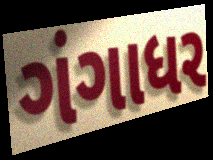
ગંગાધર